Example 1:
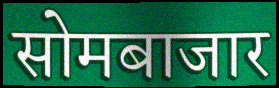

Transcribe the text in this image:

सोमबाजार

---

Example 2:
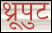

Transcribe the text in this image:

थ्रूपुट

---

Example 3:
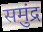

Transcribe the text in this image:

समुंद्र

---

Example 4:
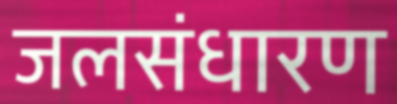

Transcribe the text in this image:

जलसंधारण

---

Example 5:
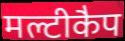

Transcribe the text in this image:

मल्टीकैप